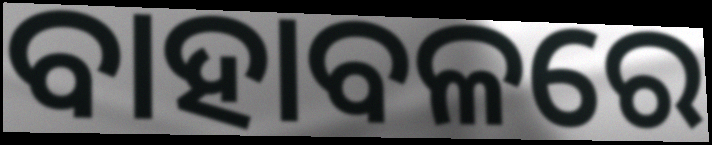
ବାହାବଳରେ